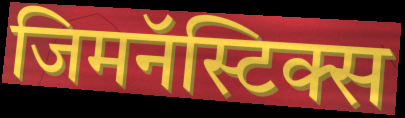
जिमनॅस्टिक्स